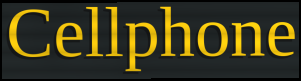
Cellphone